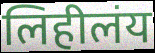
लिहीलंय